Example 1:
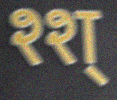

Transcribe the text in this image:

श्श्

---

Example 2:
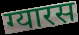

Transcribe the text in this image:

ग्यारस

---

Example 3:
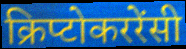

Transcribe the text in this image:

क्रिप्टोकररेंसी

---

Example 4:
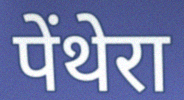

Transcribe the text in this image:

पेंथेरा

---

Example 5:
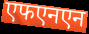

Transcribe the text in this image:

एफएनएन